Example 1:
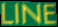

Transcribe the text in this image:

LINE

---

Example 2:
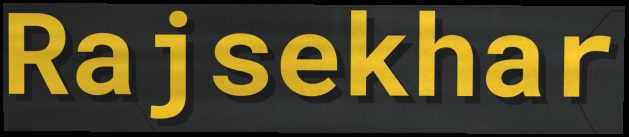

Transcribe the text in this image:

Rajsekhar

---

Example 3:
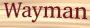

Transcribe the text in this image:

Wayman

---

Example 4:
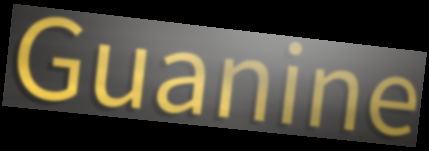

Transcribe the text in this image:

Guanine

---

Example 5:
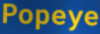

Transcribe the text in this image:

Popeye